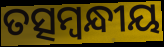
ତତ୍ସମ୍ବନ୍ଧୀୟ